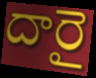
దారై